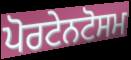
ਪੋਰਟੇਨਟੋਸਮ